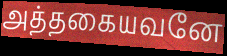
அத்தகையவனே